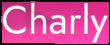
Charly